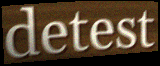
detest